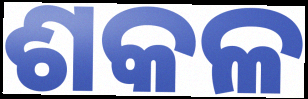
ଶକଳ